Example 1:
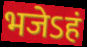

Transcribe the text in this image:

भजेऽहं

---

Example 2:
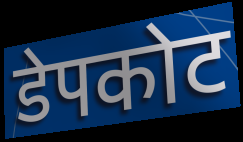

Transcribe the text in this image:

डेपकोट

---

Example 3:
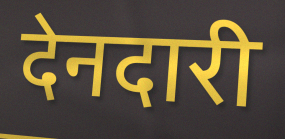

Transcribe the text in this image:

देनदारी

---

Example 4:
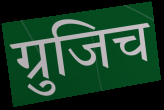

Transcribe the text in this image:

ग्रुजिच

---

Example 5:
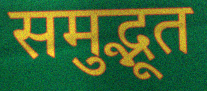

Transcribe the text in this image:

समुद्भूत